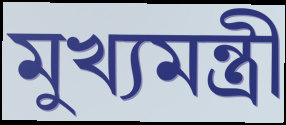
মুখ্যমন্ত্রী